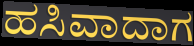
ಹಸಿವಾದಾಗ